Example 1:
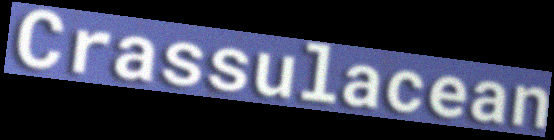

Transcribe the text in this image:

Crassulacean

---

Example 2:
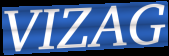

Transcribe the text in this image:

VIZAG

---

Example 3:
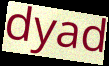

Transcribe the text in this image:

dyad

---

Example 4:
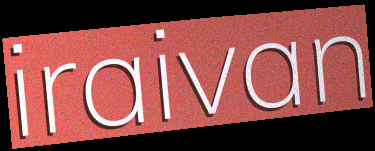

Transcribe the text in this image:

iraivan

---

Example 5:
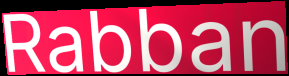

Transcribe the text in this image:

Rabban